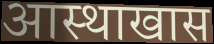
आस्थाखास